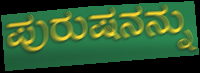
ಪುರುಷನನ್ನು